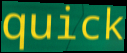
quick